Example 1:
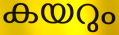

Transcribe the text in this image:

കയറും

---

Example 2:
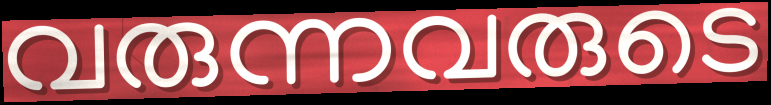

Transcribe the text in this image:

വരുന്നവരുടെ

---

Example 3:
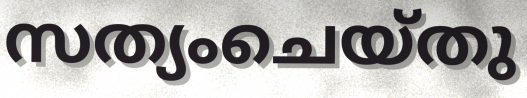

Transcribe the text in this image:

സത്യംചെയ്തു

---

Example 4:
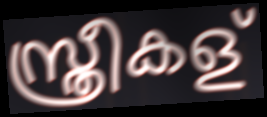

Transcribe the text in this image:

സ്ത്രീകള്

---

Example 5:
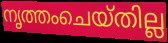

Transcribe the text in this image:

നൃത്തംചെയ്തില്ല